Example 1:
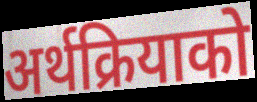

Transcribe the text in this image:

अर्थक्रियाको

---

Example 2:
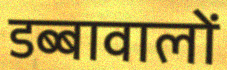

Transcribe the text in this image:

डब्बावालों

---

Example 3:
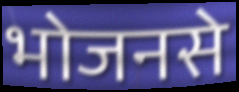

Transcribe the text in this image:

भोजनसे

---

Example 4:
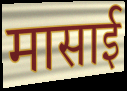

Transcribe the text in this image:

मासाई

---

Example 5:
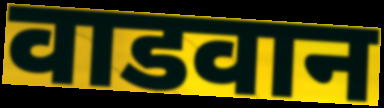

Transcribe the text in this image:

वाडवान